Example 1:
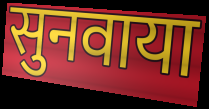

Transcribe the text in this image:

सुनवाया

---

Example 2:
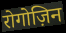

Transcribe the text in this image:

रोगोज़िन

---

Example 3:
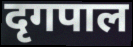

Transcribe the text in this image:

दृगपाल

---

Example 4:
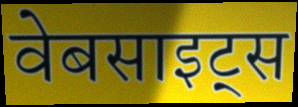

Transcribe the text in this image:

वेबसाइट्स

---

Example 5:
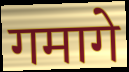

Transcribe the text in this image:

गमागे